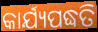
କାର୍ଯ୍ୟପଦ୍ଧତି